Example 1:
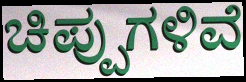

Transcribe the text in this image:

ಚಿಪ್ಪುಗಳಿವೆ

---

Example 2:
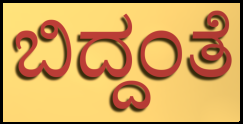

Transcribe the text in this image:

ಬಿದ್ದಂತೆ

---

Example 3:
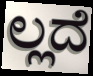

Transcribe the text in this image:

ಲ್ಲದೆ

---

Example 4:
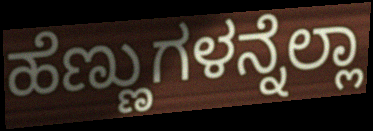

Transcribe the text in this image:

ಹೆಣ್ಣುಗಳನ್ನೆಲ್ಲಾ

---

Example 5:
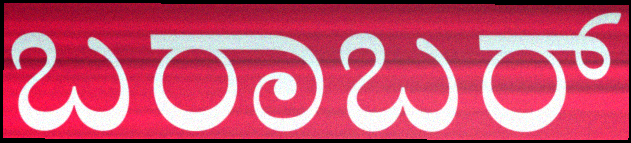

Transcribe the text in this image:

ಬರಾಬರ್